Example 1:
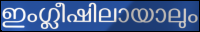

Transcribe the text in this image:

ഇംഗ്ലീഷിലായാലും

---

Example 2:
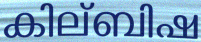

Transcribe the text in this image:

കില്ബിഷ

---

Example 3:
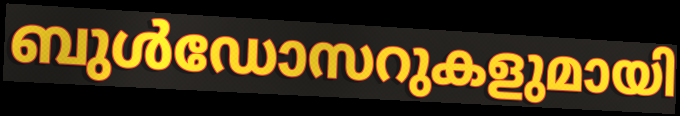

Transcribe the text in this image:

ബുൾഡോസറുകളുമായി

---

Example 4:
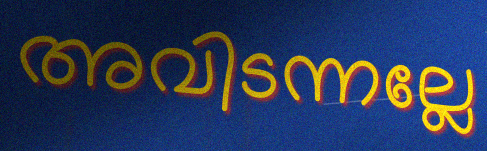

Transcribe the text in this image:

അവിടന്നല്ലേ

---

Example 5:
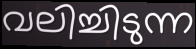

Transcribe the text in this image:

വലിച്ചിടുന്ന